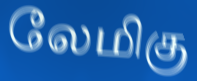
லேமிகு